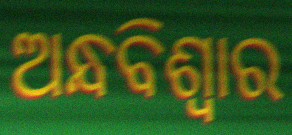
ଅନ୍ଧବିଶ୍ୱାର